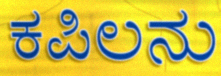
ಕಪಿಲನು